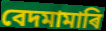
বেদমামাৰি